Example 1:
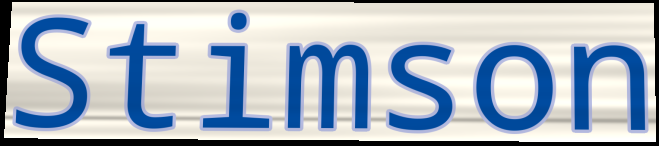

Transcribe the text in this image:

Stimson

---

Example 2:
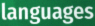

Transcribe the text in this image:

languages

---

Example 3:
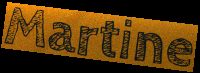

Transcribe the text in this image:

Martine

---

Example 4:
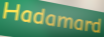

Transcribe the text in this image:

Hadamard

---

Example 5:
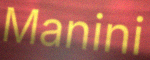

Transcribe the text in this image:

Manini